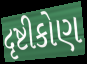
દૃષ્ટીકોણ